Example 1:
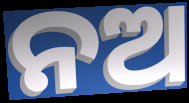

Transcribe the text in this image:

ନଅ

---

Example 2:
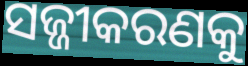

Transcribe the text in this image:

ସଜ୍ଜୀକରଣକୁ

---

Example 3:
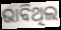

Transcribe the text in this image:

ଭାବିଥିଲ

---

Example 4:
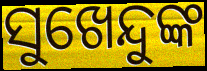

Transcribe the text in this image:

ସୁଖେନ୍ଦୁଙ୍କ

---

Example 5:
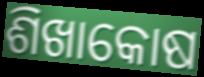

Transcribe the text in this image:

ଶିଖାକୋଷ